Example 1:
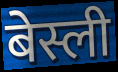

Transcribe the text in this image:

बेस्ली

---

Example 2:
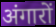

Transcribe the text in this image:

अंगारों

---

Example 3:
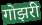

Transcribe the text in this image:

गोझरी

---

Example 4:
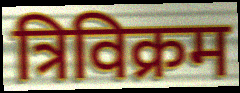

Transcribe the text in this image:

त्रिविक्रम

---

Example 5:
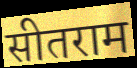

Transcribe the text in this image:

सीतराम